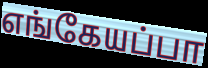
எங்கேயப்பா